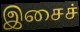
இசைச்